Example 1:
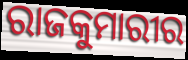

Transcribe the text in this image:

ରାଜକୁମାରୀର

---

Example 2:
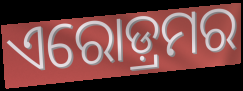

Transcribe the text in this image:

ଏରୋଡ଼୍ରମର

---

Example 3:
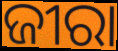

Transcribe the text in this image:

ଜୀରା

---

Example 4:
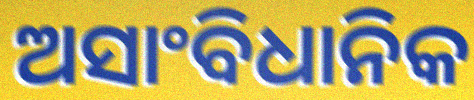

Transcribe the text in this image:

ଅସାଂବିଧାନିକ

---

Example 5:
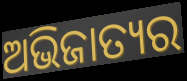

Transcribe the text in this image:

ଅଭିଜାତ୍ୟର